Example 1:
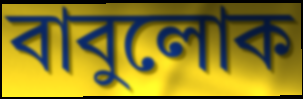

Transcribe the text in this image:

বাবুলোক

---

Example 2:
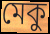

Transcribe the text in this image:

মেকু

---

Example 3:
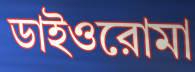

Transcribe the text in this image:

ডাইওরোমা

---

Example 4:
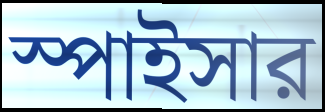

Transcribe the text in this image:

স্পাইসার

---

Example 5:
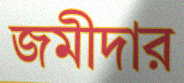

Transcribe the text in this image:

জমীদার